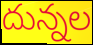
దున్నల